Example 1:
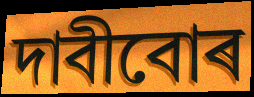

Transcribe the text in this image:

দাবীবোৰ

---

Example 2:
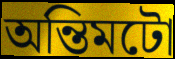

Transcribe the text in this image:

অন্তিমটো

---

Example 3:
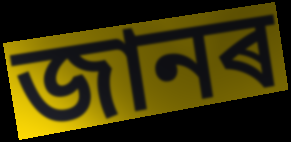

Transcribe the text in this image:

জানৰ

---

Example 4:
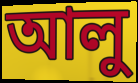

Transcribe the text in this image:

আলু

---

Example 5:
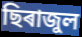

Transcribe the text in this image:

ছিৰাজুল